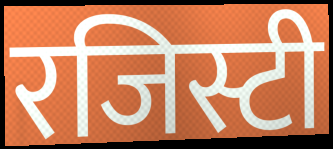
रजिस्टी